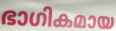
ഭാഗികമായ